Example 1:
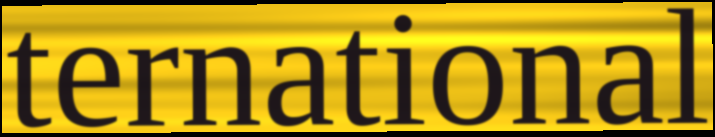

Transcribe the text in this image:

ternational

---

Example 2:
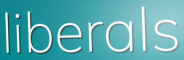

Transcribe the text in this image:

liberals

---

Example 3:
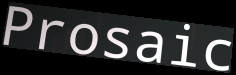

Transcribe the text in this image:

Prosaic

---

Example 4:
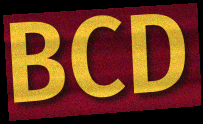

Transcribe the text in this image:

BCD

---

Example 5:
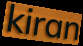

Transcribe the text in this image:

kiran